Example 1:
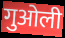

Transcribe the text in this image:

गुओली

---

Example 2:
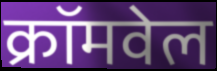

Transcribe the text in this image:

क्रॉमवेल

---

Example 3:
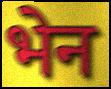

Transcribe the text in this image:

भेन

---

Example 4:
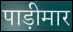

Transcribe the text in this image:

पाड़ीमार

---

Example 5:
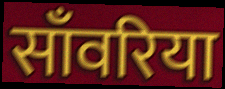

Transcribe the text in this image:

साँवरिया